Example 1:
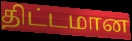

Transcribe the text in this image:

திட்டமான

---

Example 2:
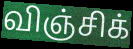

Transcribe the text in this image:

விஞ்சிக்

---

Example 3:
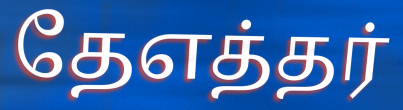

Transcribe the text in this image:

தேஎத்தர்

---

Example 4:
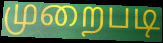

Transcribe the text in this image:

முறைபடி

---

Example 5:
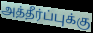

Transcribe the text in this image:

அத்தீர்ப்புக்கு